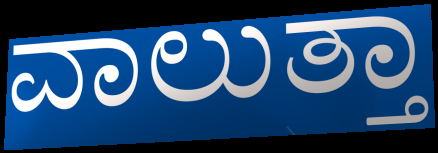
ವಾಲುತ್ತಾ